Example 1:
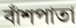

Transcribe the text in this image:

বাঁশপাতা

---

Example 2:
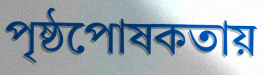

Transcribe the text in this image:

পৃষ্ঠপোষকতায়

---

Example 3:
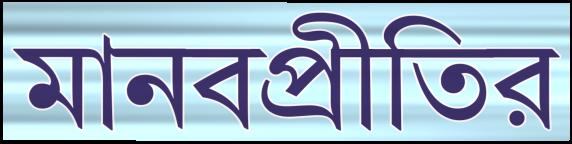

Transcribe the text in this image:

মানবপ্রীতির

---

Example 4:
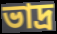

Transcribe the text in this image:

ভাদ্র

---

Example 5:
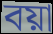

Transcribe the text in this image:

বয়া